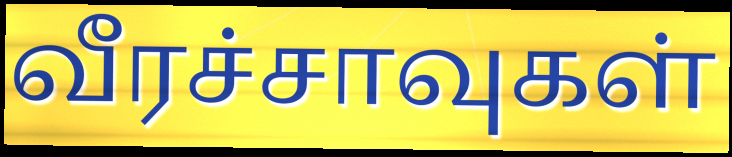
வீரச்சாவுகள்